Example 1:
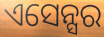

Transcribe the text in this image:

ଏସେନ୍ସର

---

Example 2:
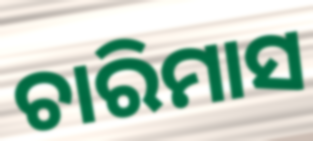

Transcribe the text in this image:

ଚାରିମାସ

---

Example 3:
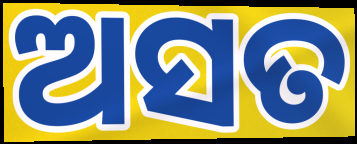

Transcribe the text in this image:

ଅସତ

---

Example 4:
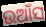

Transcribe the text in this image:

ଉଆଁସ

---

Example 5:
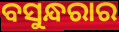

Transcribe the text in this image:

ବସୁନ୍ଧରାର